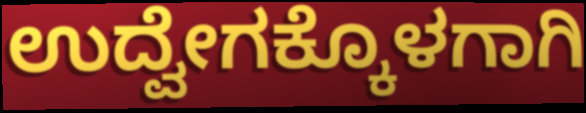
ಉದ್ವೇಗಕ್ಕೊಳಗಾಗಿ